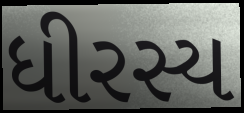
ધીરસ્ય